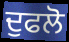
ਦੁਫਲੋ